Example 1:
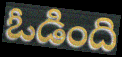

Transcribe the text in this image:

ఓడింది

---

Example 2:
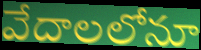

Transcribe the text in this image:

వేదాలలోనూ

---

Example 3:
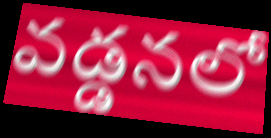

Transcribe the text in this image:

వడ్డనలో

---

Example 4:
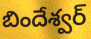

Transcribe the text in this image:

బిందేశ్వర్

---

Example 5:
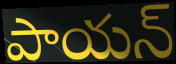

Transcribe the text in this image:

పాయన్